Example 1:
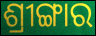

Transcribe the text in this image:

ଶ୍ରୀଙ୍ଗାର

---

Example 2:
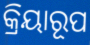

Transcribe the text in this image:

କ୍ରିୟାରୂପ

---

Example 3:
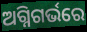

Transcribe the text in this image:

ଅଗ୍ନିଗର୍ଭରେ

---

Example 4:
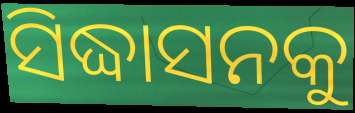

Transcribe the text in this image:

ସିଦ୍ଧାସନକୁ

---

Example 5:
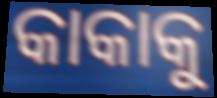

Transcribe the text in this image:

କାକାକୁ